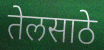
तेलसाठे